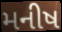
મનીષ